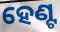
ହେଣ୍ଟ